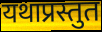
यथाप्रस्तुत